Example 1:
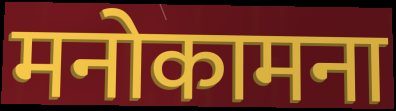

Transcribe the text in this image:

मनोकामना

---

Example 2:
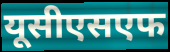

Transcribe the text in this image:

यूसीएसएफ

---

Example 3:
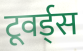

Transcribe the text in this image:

टूवर्ड्स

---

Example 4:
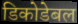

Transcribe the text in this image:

डिकोडेबल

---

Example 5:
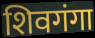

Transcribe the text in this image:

शिवगंगा